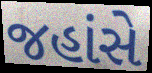
જહાંસે